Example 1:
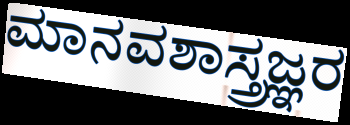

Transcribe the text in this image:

ಮಾನವಶಾಸ್ತ್ರಜ್ಞರ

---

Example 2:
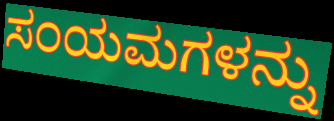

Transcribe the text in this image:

ಸಂಯಮಗಳನ್ನು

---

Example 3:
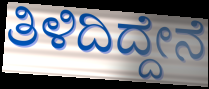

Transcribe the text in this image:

ತಿಳಿದಿದ್ದೇನೆ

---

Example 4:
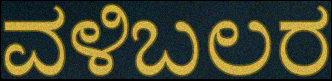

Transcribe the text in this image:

ವಳಿಬಲರ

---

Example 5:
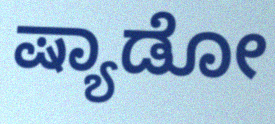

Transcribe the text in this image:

ಷ್ಯಾಡೋ